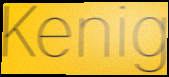
Kenig